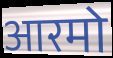
आरमो